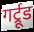
गर्ट्रूड